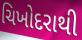
ચિખોદરાથી